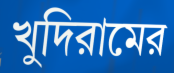
খুদিরামের